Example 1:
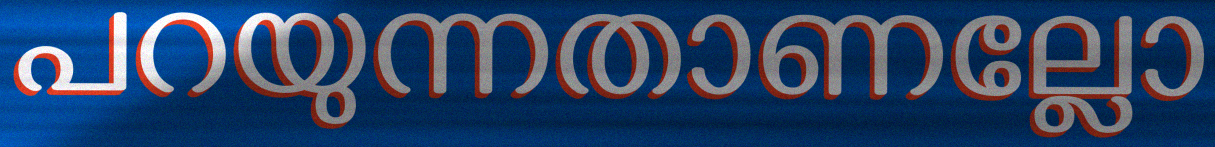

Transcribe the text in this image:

പറയുന്നതാണല്ലോ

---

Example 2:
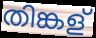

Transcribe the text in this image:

തിങ്കള്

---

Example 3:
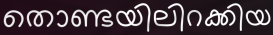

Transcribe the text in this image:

തൊണ്ടയിലിറക്കിയ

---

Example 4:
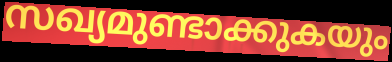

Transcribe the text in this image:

സഖ്യമുണ്ടാക്കുകയും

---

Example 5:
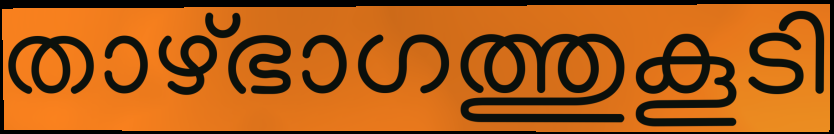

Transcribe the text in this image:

താഴ്ഭാഗത്തുകൂടി